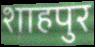
शाहपुर